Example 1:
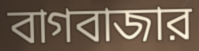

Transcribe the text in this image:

বাগবাজার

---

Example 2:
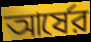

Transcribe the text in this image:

আর্ষের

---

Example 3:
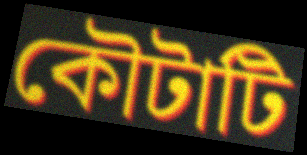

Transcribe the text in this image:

কৌটাটি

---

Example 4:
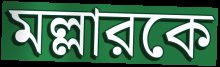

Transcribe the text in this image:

মল্লারকে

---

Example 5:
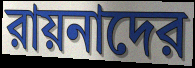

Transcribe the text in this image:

রায়নাদের